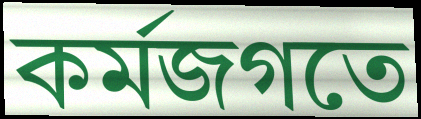
কর্মজগতে